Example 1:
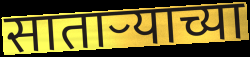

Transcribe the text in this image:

साताऱ्याच्या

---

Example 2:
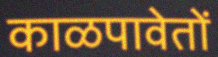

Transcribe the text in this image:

काळपावेतों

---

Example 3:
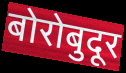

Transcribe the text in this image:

बोरोबुदूर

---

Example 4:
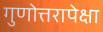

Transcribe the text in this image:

गुणोत्तरापेक्षा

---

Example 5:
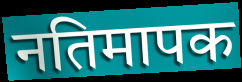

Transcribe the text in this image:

नतिमापक